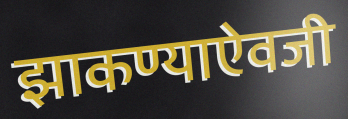
झाकण्याऐवजी